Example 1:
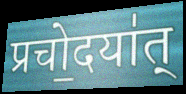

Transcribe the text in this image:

प्रचो॒दया॑त्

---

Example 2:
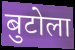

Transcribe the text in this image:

बुटोला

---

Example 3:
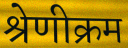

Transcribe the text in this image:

श्रेणीक्रम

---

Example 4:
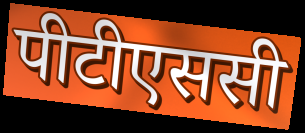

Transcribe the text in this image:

पीटीएससी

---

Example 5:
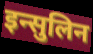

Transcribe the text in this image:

इन्सुलिन